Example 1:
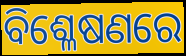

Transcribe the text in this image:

ବିଶ୍ଳେଷଣରେ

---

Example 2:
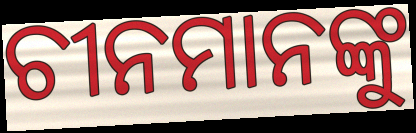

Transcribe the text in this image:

ଚୀନମାନଙ୍କୁ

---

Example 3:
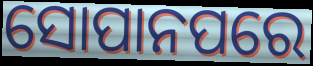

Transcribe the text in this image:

ସୋପାନପରେ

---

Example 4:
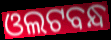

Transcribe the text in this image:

ଓଲଟବନ୍ଧ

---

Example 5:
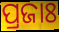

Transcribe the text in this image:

ପ୍ରଜାଃ